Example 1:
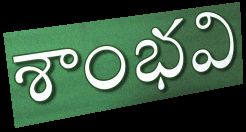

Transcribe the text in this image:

శాంభవి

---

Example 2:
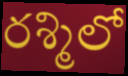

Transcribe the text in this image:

రశ్మిలో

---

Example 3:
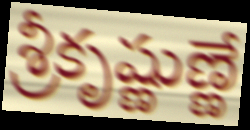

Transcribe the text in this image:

శ్రీకృష్ణుణ్ణే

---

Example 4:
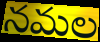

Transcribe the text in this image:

నమల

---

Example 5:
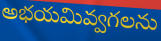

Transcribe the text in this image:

అభయమివ్వగలను